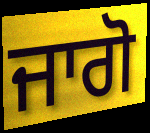
ਜਾਗੋ